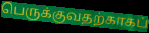
பெருக்குவதற்காகப்